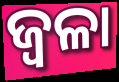
ଜ୍ଵଳା